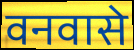
वनवासे